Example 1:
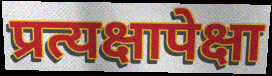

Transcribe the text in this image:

प्रत्यक्षापेक्षा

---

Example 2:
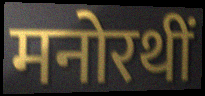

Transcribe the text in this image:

मनोरथीं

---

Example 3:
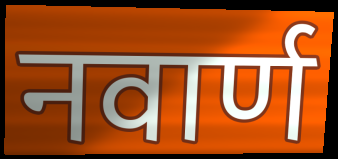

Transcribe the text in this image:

नवार्ण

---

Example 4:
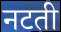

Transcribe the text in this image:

नटती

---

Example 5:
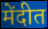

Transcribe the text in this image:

मेंदीत